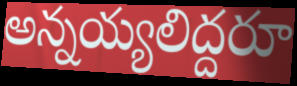
అన్నయ్యలిద్దరూ